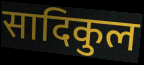
सादिकुल